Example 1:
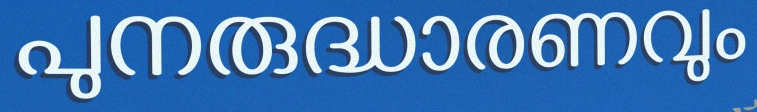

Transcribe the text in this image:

പുനരുദ്ധാരണവും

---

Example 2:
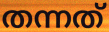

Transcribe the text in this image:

തന്നത്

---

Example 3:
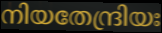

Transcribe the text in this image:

നിയതേന്ദ്രിയഃ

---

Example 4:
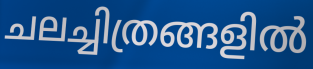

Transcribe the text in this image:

ചലച്ചിത്രങ്ങളിൽ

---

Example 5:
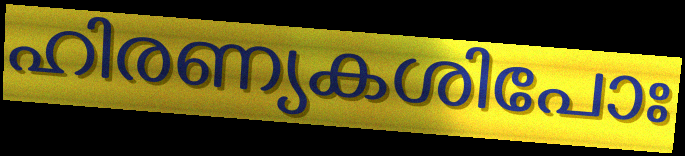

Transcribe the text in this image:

ഹിരണ്യകശിപോഃ